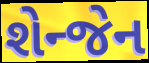
શેન્જેન